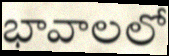
భావాలలో